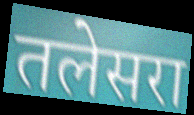
तलेसरा